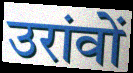
उरांवों